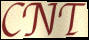
CNT